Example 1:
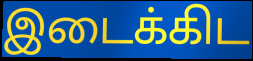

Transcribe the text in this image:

இடைக்கிட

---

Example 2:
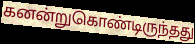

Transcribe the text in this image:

கனன்றுகொண்டிருந்தது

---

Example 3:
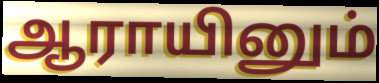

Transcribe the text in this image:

ஆராயினும்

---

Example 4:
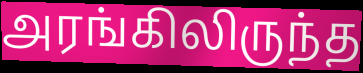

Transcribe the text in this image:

அரங்கிலிருந்த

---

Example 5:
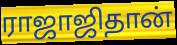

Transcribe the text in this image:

ராஜாஜிதான்